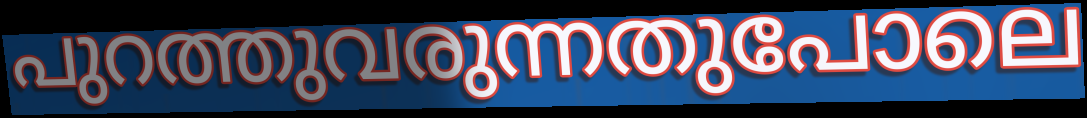
പുറത്തുവരുന്നതുപോലെ